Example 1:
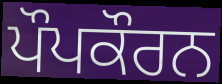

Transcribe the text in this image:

ਪੌਪਕੌਰਨ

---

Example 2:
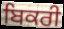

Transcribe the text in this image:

ਬਿਕਰੀ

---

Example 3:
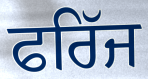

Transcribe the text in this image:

ਫਰਿੱਜ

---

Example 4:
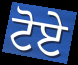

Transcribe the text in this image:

ਟੋਏ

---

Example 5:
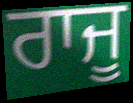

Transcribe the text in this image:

ਰਾਜੂ